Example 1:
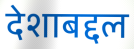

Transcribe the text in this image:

देशाबद्दल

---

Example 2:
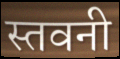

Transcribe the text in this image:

स्तवनी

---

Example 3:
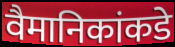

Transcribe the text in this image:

वैमानिकांकडे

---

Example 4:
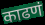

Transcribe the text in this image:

काढणं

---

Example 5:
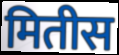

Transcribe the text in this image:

मितीस